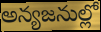
అన్యజనుల్లో